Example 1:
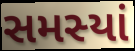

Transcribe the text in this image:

સમસ્યાં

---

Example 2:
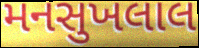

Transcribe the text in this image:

મનસુખલાલ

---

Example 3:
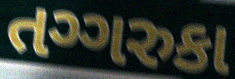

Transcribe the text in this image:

તગ્ગરુકા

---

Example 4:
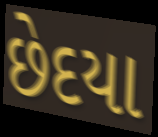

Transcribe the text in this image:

છેદયા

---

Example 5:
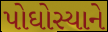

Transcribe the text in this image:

પોઘોસ્યાને